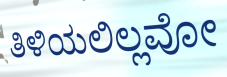
ತಿಳಿಯಲಿಲ್ಲವೋ